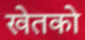
खेतको